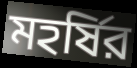
মহর্ষির